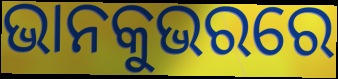
ଭାନକୁଭରରେ